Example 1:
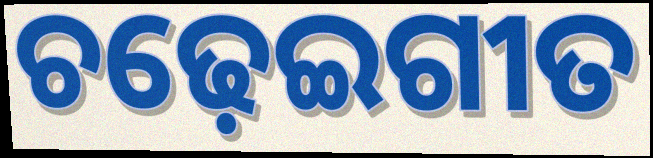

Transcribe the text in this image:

ଚଢ଼େଇଗୀତ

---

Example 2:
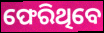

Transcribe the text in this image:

ଫେରିଥିବେ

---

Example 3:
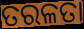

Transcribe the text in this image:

ତରଳତା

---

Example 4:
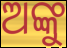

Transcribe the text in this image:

ଅଙ୍କୁ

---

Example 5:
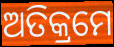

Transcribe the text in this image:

ଅତିକ୍ରମେ